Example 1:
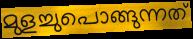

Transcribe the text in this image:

മുളച്ചുപൊങ്ങുന്നത്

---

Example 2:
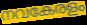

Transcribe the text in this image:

നവകേരളം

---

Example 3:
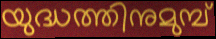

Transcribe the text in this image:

യുദ്ധത്തിനുമുമ്പ്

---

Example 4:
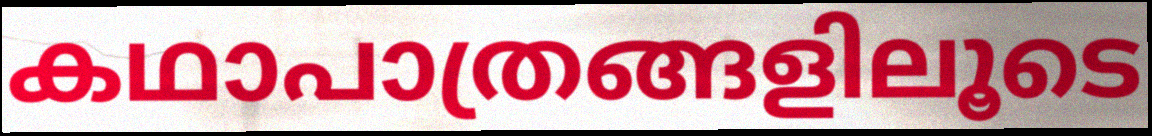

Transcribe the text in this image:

കഥാപാത്രങ്ങളിലൂടെ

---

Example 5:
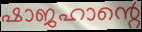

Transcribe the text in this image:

ഷാജഹാന്റെ